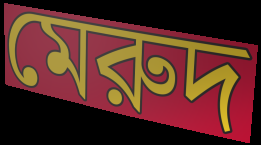
মেরুদ